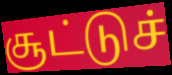
சூட்டுச்